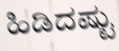
ಹಿಡಿದಷ್ಟು